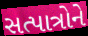
સત્પાત્રોને